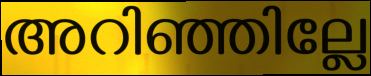
അറിഞ്ഞില്ലേ